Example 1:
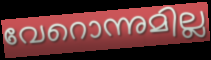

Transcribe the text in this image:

വേറൊന്നുമില്ല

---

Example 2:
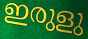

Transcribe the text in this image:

ഇരുളു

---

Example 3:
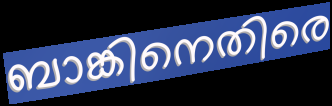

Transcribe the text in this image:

ബാങ്കിനെതിരെ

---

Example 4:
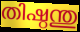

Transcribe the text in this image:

തിഷ്ഠന്തു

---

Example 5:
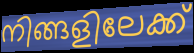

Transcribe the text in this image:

നിങ്ങളിലേക്ക്